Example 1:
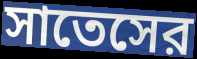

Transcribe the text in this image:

সাতেসের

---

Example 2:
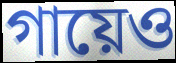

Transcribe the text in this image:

গায়েও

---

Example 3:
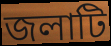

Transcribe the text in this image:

জলাটি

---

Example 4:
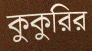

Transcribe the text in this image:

কুকুরির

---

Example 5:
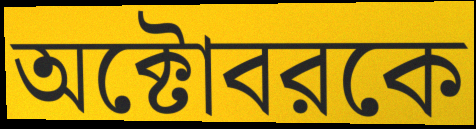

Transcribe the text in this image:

অক্টোবরকে